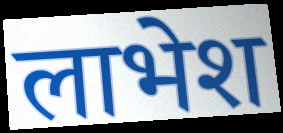
लाभेश